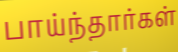
பாய்ந்தார்கள்